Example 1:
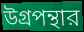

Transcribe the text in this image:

উগ্রপন্থার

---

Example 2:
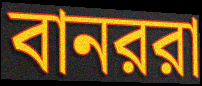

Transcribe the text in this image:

বানররা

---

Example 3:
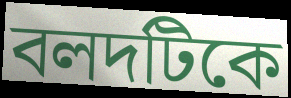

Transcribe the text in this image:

বলদটিকে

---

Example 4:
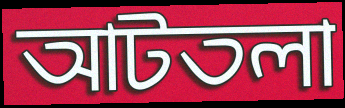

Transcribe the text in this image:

আটতলা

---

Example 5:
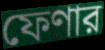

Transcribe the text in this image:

ফেণার